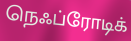
நெஃப்ரோடிக்